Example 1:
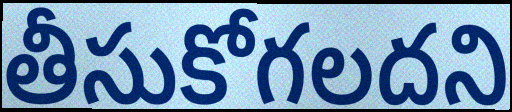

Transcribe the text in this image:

తీసుకోగలదని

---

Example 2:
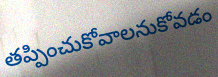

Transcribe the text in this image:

తప్పించుకోవాలనుకోవడం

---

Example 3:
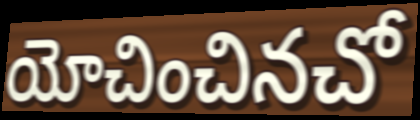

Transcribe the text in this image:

యోచించినచో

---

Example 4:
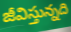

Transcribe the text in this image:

జీవిస్తున్నది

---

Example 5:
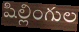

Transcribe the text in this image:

షిల్లింగుల